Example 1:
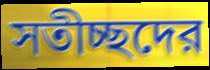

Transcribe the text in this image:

সতীচ্ছদের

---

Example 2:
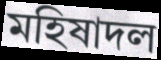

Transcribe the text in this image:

মহিষাদল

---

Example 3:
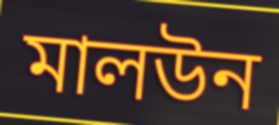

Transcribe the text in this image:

মালউন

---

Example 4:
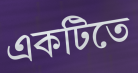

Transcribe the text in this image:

একটিতে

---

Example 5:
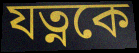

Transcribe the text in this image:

যত্নকে